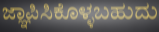
ಜ್ಞಾಪಿಸಿಕೊಳ್ಳಬಹುದು